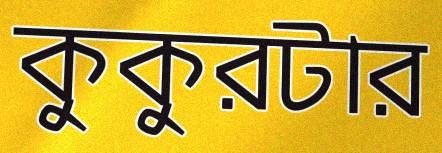
কুকুরটার